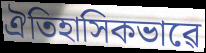
ঐতিহাসিকভাৱে